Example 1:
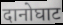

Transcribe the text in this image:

दानोघाट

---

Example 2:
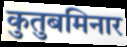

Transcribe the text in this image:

कुतुबमिनार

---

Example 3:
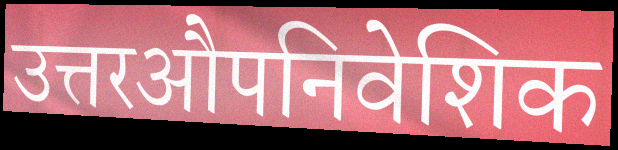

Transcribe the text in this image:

उत्तरऔपनिवेशिक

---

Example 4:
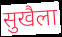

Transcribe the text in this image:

सुखैला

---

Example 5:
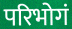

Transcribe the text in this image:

परिभोगं